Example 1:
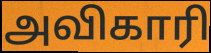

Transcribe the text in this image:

அவிகாரி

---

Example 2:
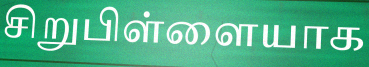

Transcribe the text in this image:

சிறுபிள்ளையாக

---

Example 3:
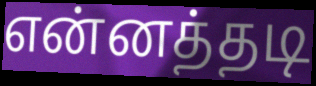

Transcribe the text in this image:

என்னத்தடி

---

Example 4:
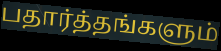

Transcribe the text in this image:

பதார்த்தங்களும்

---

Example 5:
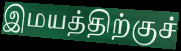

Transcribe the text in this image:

இமயத்திற்குச்